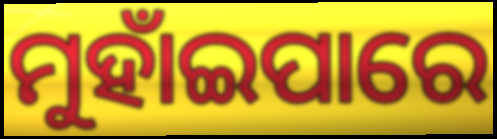
ମୁହାଁଇପାରେ